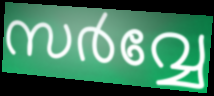
സർവ്വേ